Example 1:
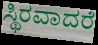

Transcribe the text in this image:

ಸ್ಥಿರವಾದರೆ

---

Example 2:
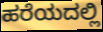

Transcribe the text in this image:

ಹರೆಯದಲ್ಲಿ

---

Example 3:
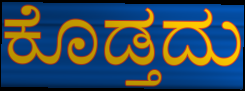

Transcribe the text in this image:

ಕೊಡ್ತದು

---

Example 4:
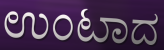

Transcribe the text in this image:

ಉಂಟಾದ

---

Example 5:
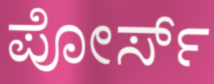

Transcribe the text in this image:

ಪೋರ್ಸ್